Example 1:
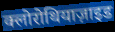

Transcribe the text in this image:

क्लोरोथियाज़ाइड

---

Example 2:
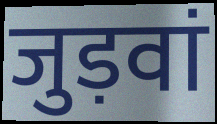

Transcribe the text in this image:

जुड़वां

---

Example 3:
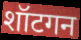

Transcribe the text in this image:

शॉटगन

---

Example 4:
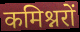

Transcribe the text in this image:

कमिश्नरों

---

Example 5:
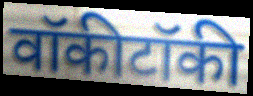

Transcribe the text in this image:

वॉकीटॉकी